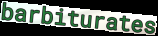
barbiturates